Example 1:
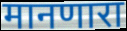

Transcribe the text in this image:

मानणारा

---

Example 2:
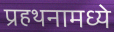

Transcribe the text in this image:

प्रहथनामध्ये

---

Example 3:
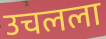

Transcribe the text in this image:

उचलला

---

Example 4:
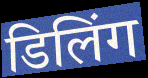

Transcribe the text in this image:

डिलिंग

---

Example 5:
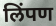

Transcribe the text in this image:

लिंपण